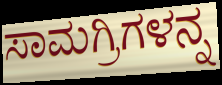
ಸಾಮಗ್ರಿಗಳನ್ನ